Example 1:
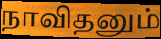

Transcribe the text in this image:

நாவிதனும்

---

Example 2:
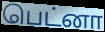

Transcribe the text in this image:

பெட்னா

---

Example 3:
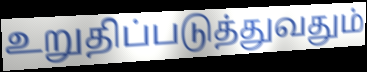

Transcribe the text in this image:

உறுதிப்படுத்துவதும்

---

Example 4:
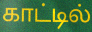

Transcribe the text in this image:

காட்டில்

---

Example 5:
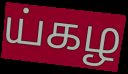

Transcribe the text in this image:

ய்கழ